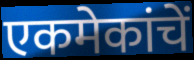
एकमेकांचें